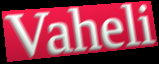
Vaheli